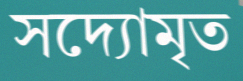
সদ্যোমৃত